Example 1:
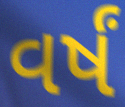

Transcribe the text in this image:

વર્ષં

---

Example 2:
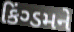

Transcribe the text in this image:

કિંગ્ડમને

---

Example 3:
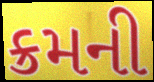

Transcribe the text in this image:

ક્રમની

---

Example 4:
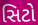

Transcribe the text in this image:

સિટો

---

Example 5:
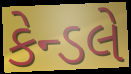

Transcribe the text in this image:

કેન્ડલે